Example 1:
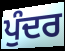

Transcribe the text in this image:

ਪੁੰਦਰ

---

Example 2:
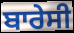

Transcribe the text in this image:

ਬਾਰੇਸੀ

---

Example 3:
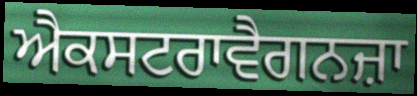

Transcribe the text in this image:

ਐਕਸਟਰਾਵੈਗਨਜ਼ਾ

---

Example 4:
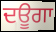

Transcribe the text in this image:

ਦਊਗਾ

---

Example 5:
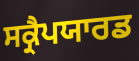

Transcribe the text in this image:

ਸਕ੍ਰੈਪਯਾਰਡ